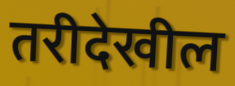
तरीदेखील